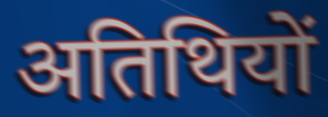
अतिथियों